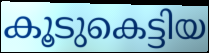
കൂടുകെട്ടിയ